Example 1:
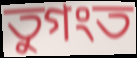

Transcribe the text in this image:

তুগংত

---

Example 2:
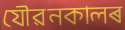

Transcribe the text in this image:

যৌৱনকালৰ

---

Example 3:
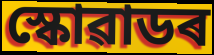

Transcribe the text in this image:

স্কোৱাডৰ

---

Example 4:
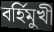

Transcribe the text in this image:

বৰ্হিমুখী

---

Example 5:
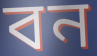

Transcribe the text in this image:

বন